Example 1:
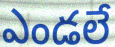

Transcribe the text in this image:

ఎండలే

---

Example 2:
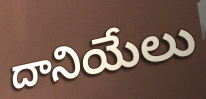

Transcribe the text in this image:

దానియేలు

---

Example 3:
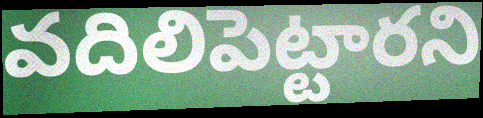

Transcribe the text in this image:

వదిలిపెట్టారని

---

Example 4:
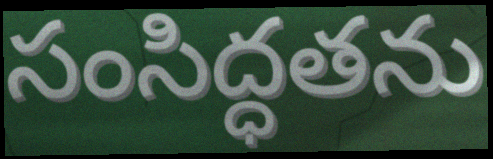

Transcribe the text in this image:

సంసిద్ధతను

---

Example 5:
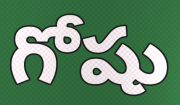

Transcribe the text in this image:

గోషు